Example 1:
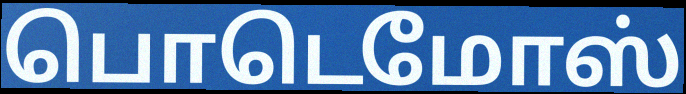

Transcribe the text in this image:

பொடெமோஸ்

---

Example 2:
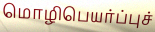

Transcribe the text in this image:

மொழிபெயர்ப்புச்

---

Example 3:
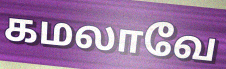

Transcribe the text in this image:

கமலாவே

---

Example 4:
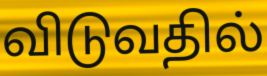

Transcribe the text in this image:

விடுவதில்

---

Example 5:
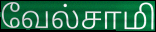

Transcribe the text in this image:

வேல்சாமி